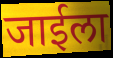
जाईला